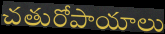
చతురోపాయాలు